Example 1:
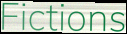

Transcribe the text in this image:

Fictions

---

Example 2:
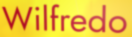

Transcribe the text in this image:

Wilfredo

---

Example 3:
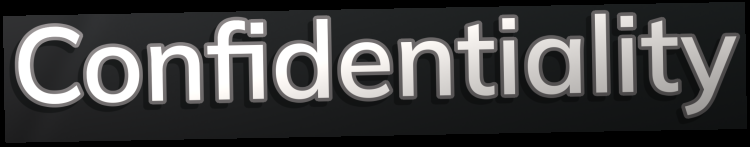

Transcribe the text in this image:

Confidentiality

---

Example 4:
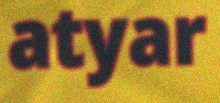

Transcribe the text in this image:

atyar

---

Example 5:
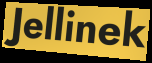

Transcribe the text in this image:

Jellinek